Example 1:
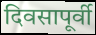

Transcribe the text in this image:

दिवसापूर्वी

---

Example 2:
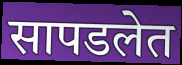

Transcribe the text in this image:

सापडलेत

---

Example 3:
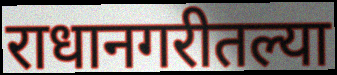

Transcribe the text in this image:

राधानगरीतल्या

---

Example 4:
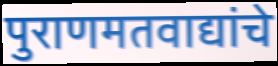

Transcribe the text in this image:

पुराणमतवाद्यांचे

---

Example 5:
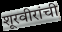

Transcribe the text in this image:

शूरवीरांची